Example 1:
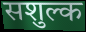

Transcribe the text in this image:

सशुल्क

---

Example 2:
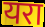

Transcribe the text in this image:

यरा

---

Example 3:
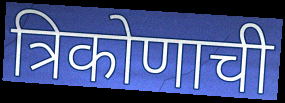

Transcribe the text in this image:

त्रिकोणाची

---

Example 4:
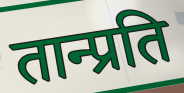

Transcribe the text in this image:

तान्प्रति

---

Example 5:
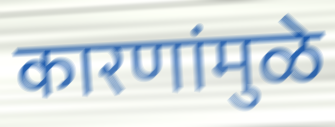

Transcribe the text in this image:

कारणांमुळे